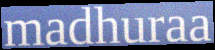
madhuraa